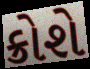
ક્રોશે